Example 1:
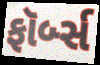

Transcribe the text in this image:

ફૉર્બ્સ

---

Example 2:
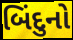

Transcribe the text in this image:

બિંદુનો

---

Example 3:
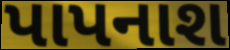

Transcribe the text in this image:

પાપનાશ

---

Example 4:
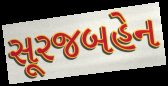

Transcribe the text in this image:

સૂરજબહેન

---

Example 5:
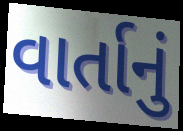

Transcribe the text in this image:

વાર્તાનું